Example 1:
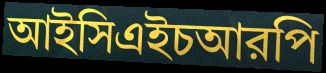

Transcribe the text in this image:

আইসিএইচআরপি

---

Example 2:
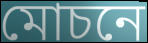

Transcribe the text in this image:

মোচনে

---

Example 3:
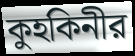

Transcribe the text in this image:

কুহকিনীর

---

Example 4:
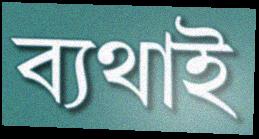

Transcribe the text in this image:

ব্যথাই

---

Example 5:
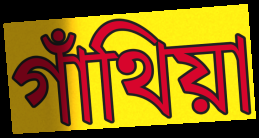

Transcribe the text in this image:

গাঁথিয়া